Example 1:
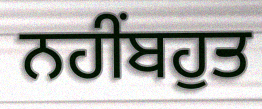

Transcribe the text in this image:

ਨਹੀਂਬਹੁਤ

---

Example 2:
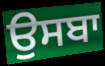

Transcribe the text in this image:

ਉਸਬਾ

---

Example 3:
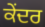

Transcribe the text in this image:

ਕੇੰਦਰ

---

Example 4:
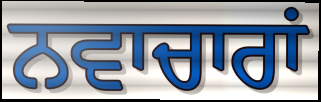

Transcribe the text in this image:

ਨਵਾਚਾਰਾਂ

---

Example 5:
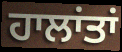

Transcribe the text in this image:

ਹਾਲਾਂਤਾਂ